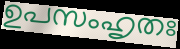
ഉപസംഹൃതഃ